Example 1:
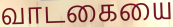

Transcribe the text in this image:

வாடகையை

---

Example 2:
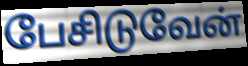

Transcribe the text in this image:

பேசிடுவேன்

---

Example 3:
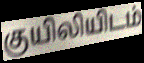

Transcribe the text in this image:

குயிலியிடம்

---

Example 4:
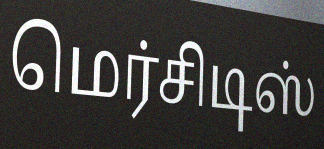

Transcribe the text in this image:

மெர்சிடிஸ்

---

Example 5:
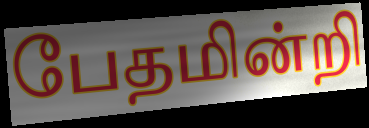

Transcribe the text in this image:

பேதமின்றி